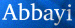
Abbayi